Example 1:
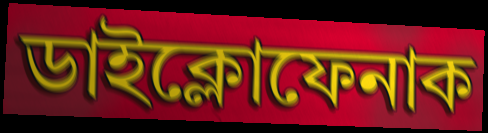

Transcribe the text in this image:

ডাইক্লোফেনাক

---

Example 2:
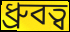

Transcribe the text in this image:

ধ্রুবত্ব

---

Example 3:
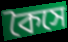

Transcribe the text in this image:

কৈসে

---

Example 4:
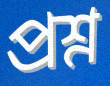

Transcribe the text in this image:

প্রশ্ন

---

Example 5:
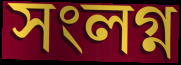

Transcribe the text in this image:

সংলগ্ন